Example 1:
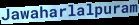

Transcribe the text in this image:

Jawaharlalpuram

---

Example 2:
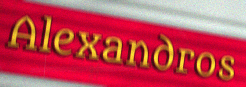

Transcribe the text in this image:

Alexandros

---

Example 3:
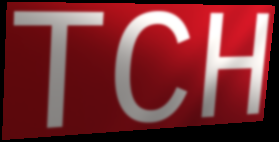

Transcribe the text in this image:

TCH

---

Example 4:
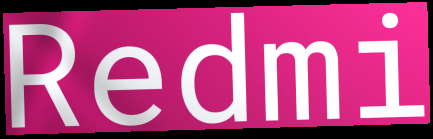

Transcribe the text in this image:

Redmi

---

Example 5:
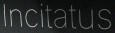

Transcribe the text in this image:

Incitatus